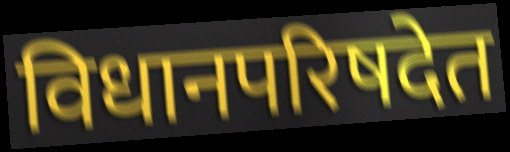
विधानपरिषदेत